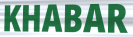
KHABAR